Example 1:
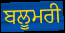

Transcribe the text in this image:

ਬਲੂਮਰੀ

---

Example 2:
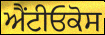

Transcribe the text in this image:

ਐਂਟੀਓਕੋਸ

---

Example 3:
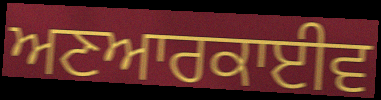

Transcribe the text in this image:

ਅਣਆਰਕਾਈਵ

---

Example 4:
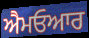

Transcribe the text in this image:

ਐਮਓਆਰ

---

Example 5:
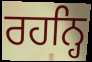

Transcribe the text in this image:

ਰਹਨ੍ਹਿ